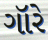
ગૉરે